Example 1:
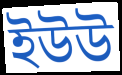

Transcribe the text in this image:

ইউউ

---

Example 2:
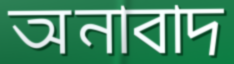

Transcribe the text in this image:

অনাবাদ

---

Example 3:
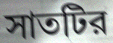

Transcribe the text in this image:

সাতটির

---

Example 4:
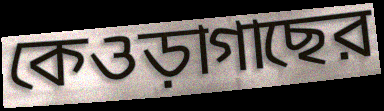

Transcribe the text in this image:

কেওড়াগাছের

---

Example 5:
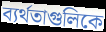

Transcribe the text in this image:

ব্যর্থতাগুলিকে